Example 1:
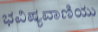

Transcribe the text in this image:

ಭವಿಷ್ಯವಾಣಿಯು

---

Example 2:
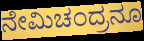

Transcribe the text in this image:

ನೇಮಿಚಂದ್ರನೂ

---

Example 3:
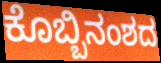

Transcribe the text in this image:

ಕೊಬ್ಬಿನಂಶದ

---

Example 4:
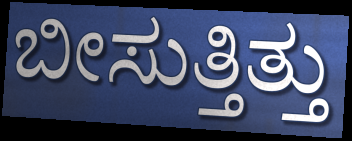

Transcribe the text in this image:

ಬೀಸುತ್ತಿತ್ತು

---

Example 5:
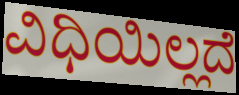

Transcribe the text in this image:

ವಿಧಿಯಿಲ್ಲದೆ